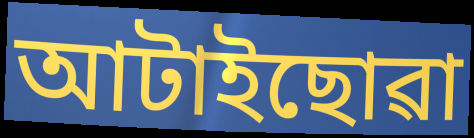
আটাইছোৱা